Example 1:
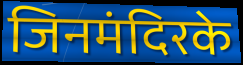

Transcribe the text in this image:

जिनमंदिरके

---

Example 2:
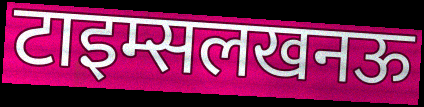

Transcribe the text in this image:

टाइम्सलखनऊ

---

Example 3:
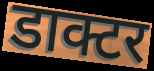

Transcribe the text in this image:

डाक्टर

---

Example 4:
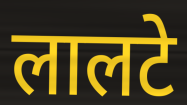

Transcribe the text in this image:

लालटे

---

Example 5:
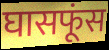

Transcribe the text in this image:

घासफूंस